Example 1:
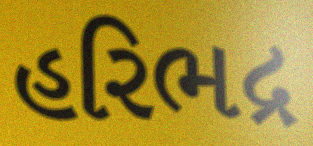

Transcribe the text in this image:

હરિભદ્ર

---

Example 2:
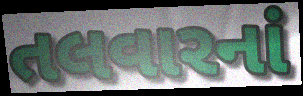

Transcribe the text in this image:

તલવારનાં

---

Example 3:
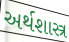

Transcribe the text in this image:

અર્થશાસ્ત્ર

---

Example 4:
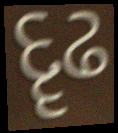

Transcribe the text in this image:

દૄઢ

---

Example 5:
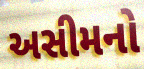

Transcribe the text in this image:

અસીમનો